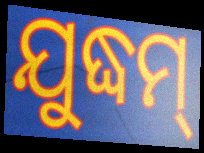
ଯୁଦ୍ଧମ୍